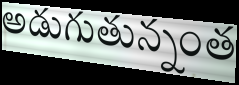
అడుగుతున్నంత